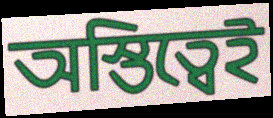
অস্তিত্বেই